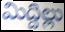
మిద్దిల్లు